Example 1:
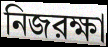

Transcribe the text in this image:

নিজরক্ষা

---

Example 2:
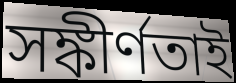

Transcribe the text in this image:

সঙ্কীর্ণতাই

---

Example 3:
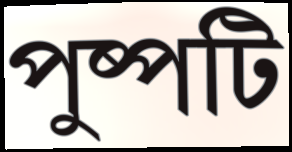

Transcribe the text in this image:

পুষ্পটি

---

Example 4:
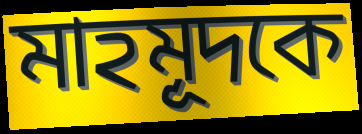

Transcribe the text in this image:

মাহমূদকে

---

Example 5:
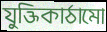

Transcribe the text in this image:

যুক্তিকাঠামো